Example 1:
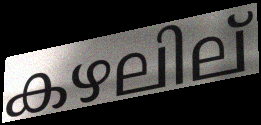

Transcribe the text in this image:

കഴലില്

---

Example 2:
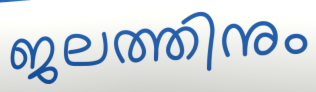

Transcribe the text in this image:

ജലത്തിനും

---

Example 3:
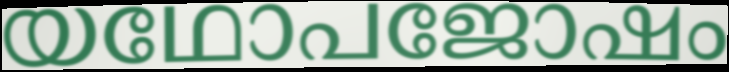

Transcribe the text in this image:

യഥോപജോഷം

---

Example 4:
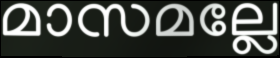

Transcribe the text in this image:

മാസമല്ലേ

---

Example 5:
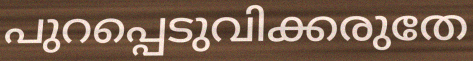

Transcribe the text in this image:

പുറപ്പെടുവിക്കരുതേ